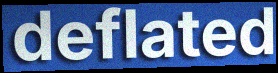
deflated